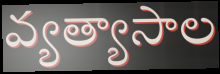
వ్యత్యాసాల